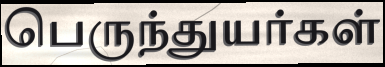
பெருந்துயர்கள்